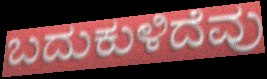
ಬದುಕುಳಿದೆವು